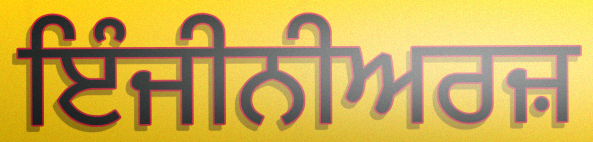
ਇੰਜੀਨੀਅਰਜ਼